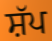
ਸ਼ੱਪ